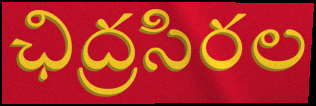
ఛిద్రసిరల